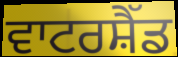
ਵਾਟਰਸ਼ੈੱਡ